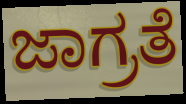
ಜಾಗ್ರತೆ